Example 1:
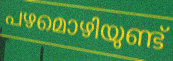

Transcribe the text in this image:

പഴമൊഴിയുണ്ട്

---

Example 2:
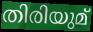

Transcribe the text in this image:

തിരിയുമ്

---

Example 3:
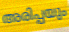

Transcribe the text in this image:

അരിപ്പയും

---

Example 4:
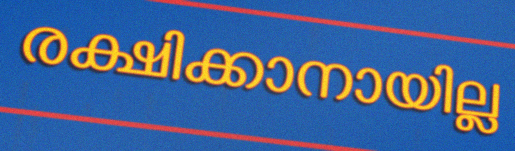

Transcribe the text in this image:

രക്ഷിക്കാനായില്ല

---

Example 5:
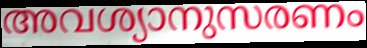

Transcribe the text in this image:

അവശ്യാനുസരണം